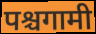
पश्चगामी